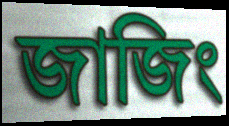
জাজিং